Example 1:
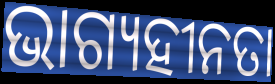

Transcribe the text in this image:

ଭାଗ୍ୟହୀନତା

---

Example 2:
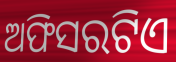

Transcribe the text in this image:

ଅଫିସରଟିଏ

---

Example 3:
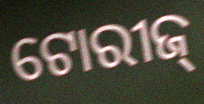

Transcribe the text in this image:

ଟୋରୀଜ୍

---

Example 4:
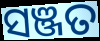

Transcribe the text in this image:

ସଞ୍ଜତ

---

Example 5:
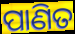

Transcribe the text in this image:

ପାଣିତ